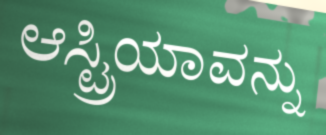
ಆಸ್ಟ್ರಿಯಾವನ್ನು